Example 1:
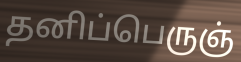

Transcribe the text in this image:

தனிப்பெருஞ்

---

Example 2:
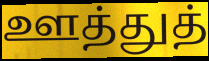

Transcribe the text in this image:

ஊத்துத்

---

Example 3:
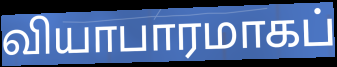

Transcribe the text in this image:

வியாபாரமாகப்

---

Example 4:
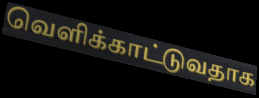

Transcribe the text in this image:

வெளிக்காட்டுவதாக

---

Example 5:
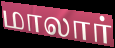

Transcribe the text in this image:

மாலார்